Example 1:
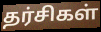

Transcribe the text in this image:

தர்சிகள்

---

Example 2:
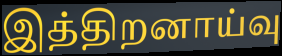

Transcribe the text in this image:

இத்திறனாய்வு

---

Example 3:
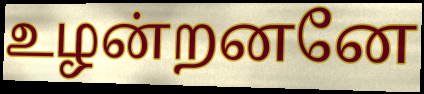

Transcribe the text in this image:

உழன்றனனே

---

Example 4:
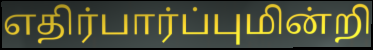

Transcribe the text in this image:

எதிர்பார்ப்புமின்றி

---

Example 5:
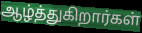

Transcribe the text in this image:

ஆழ்த்துகிறார்கள்